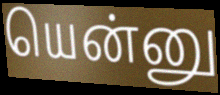
யென்னு